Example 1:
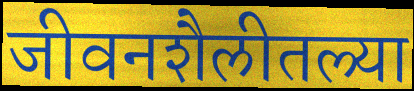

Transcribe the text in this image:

जीवनशैलीतल्या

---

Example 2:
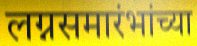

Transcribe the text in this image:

लग्नसमारंभांच्या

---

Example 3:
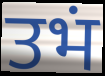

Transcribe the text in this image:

उभं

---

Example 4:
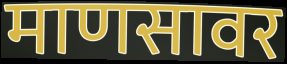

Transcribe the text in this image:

माणसावर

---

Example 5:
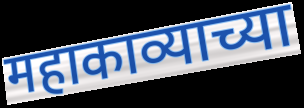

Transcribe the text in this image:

महाकाव्याच्या